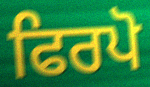
ਫਿਰਪੋ